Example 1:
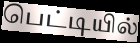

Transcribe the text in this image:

பெட்டியில்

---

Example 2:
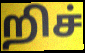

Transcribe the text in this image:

றிச்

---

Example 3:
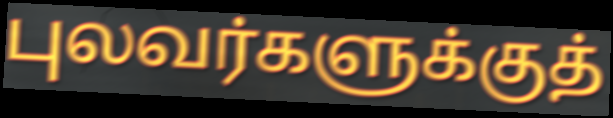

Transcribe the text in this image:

புலவர்களுக்குத்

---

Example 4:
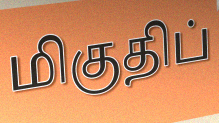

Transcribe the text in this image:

மிகுதிப்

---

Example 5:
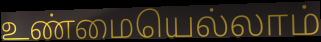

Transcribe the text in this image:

உண்மையெல்லாம்